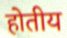
होतीय